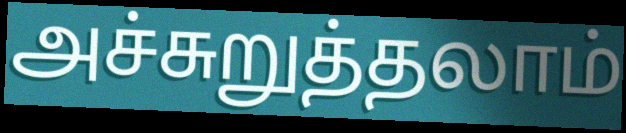
அச்சுறுத்தலாம்